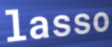
lasso